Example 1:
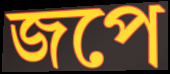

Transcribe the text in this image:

জপে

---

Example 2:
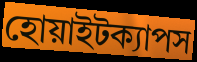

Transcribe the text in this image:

হোয়াইটক্যাপস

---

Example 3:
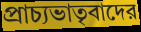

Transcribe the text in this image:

প্রাচ্যভাতৃবাদের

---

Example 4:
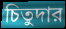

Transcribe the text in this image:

চিতুদার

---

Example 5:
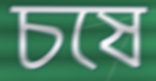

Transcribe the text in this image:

চষে